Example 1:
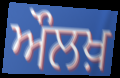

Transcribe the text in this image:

ਔਲਖ਼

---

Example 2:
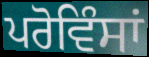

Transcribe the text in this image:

ਪਰੋਵਿੰਸਾਂ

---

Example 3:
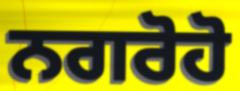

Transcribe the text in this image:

ਨਗਰੋਹੋ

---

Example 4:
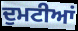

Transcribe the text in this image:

ਦੁਮਟੀਆਂ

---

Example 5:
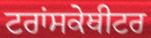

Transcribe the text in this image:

ਟਰਾਂਸਕੇਥੀਟਰ